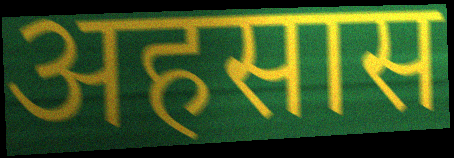
अहसास